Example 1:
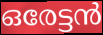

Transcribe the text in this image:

ഒരേട്ടൻ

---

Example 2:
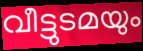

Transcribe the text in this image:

വീട്ടുടമയും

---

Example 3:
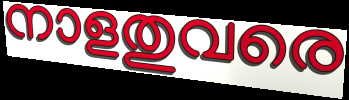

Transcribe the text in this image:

നാളതുവരെ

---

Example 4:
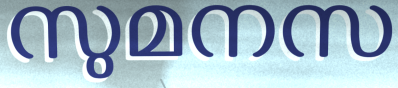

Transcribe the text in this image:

സുമനസ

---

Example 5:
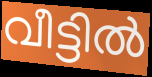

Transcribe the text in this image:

വീട്ടിൽ